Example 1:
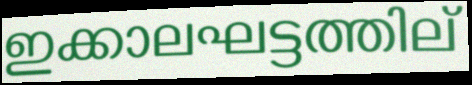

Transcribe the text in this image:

ഇക്കാലഘട്ടത്തില്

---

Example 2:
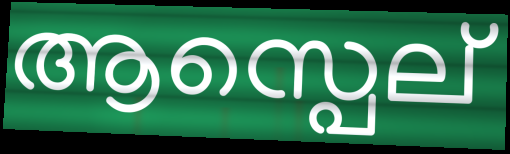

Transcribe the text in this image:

ആസ്പെല്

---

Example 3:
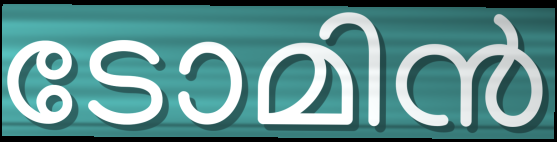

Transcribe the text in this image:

ടോമിൻ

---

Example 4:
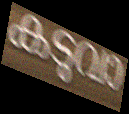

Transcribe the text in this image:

കടുവാ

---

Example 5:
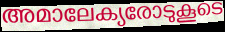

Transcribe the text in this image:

അമാലേക്യരോടുകൂടെ